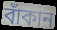
বাঁকান